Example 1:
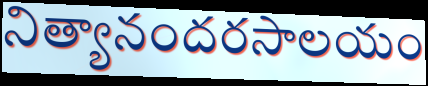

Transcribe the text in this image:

నిత్యానందరసాలయం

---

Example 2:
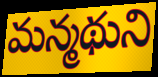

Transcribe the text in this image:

మన్మథుని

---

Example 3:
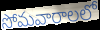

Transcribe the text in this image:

సోమవారాలలో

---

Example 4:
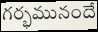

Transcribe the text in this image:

గర్భమునందే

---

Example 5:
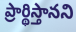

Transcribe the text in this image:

ప్రార్థిస్తానని